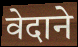
वेदाने